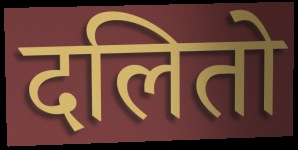
दलितो